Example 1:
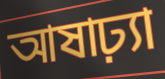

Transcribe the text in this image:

আষাঢ়্যা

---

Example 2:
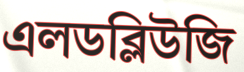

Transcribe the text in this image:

এলডব্লিউজি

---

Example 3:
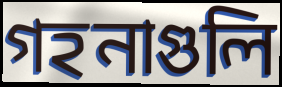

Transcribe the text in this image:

গহনাগুলি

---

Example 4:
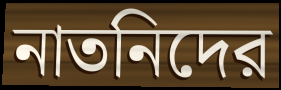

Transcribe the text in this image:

নাতনিদের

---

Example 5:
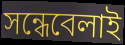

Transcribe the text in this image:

সন্ধেবেলাই